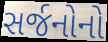
સર્જનોનો